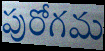
పురోగమ